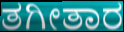
ತಗೀತಾರ